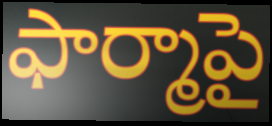
ఫార్మాపై